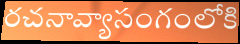
రచనావ్యాసంగంలోకి